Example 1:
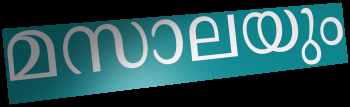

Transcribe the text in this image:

മസാലയും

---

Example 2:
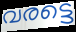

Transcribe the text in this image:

വരട്ടെ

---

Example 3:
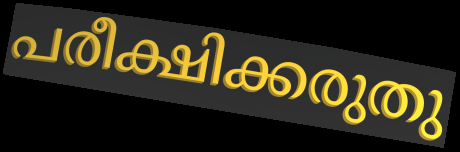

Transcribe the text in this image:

പരീക്ഷിക്കരുതു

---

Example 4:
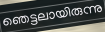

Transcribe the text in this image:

ഞെട്ടലായിരുന്നു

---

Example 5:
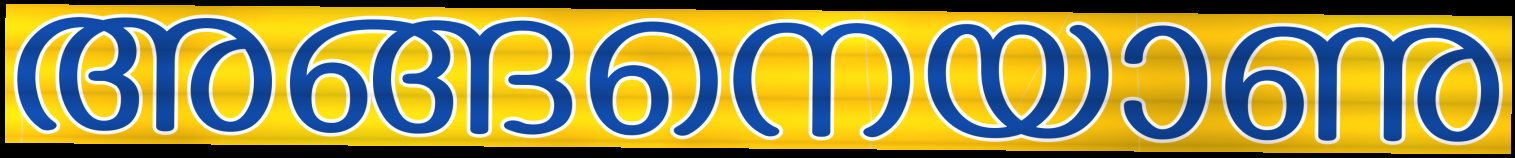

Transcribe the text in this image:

അങ്ങനെയാണു